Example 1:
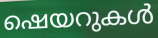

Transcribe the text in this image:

ഷെയറുകൾ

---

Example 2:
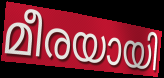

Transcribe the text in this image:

മീരയായി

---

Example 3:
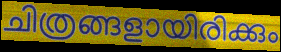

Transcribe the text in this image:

ചിത്രങ്ങളായിരിക്കും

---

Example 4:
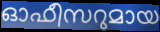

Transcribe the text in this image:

ഓഫീസറുമായ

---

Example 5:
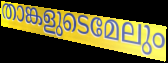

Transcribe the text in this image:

താങ്കളുടെമേലും